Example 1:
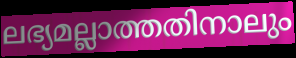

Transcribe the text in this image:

ലഭ്യമല്ലാത്തതിനാലും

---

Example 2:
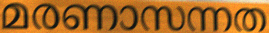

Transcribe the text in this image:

മരണാസന്നത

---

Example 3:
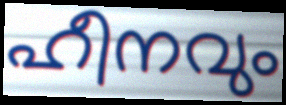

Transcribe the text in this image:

ഹീനവും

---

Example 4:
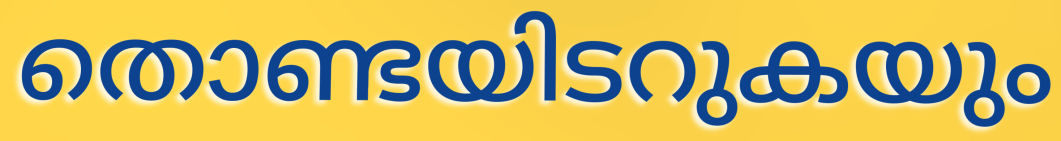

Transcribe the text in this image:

തൊണ്ടയിടറുകയും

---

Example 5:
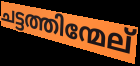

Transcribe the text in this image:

ചട്ടത്തിന്മേല്